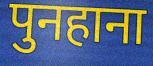
पुनहाना